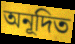
অনূদিত